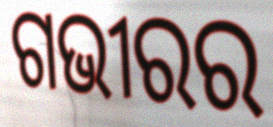
ଗଭୀରର